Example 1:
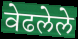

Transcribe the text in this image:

वेढलेले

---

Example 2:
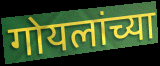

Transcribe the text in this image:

गोयलांच्या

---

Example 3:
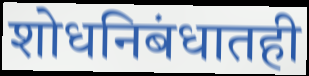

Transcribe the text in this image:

शोधनिबंधातही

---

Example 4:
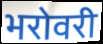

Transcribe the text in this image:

भरोवरी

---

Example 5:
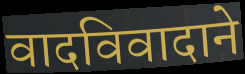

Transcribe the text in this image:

वादविवादाने